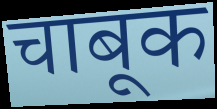
चाबूक